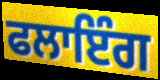
ਫਲਾਇੰਗ